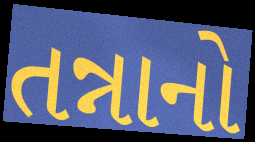
તન્નાનો